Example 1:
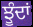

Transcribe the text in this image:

ਝੂੰਦਾਂ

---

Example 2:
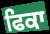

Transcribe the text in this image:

ਫਿਕਾ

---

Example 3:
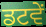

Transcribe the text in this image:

ਡਟਵੇਂ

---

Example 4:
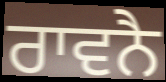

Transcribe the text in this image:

ਰਾਵਨੈ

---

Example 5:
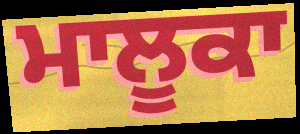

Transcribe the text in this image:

ਮਾਲੂਕਾ